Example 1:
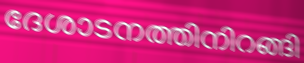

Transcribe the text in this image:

ദേശാടനത്തിനിറങ്ങി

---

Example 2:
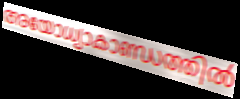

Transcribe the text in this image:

അയോധ്യാകാണ്ഡത്തിൽ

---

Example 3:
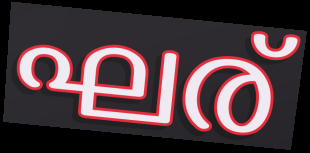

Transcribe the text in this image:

ഘര്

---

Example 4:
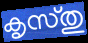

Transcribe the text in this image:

കൃസ്തു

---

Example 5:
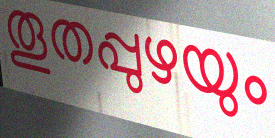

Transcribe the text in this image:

തൂതപ്പുഴയും